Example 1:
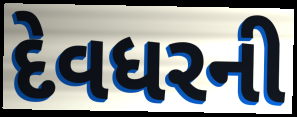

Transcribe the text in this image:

દેવધરની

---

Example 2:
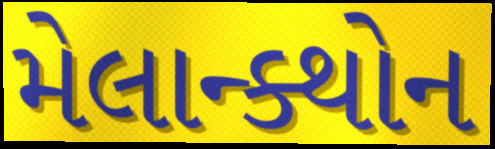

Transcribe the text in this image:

મેલાન્ક્થોન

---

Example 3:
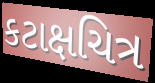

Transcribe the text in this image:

કટાક્ષચિત્ર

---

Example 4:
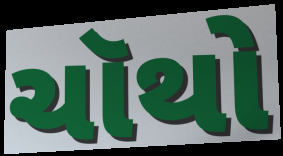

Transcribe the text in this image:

ચૉથો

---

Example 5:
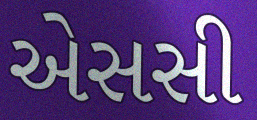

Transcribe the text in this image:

એસસી